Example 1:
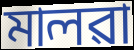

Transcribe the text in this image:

মালৱা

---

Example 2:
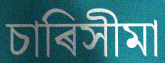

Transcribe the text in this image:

চাৰিসীমা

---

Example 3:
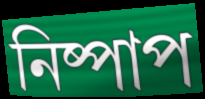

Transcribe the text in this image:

নিষ্পাপ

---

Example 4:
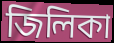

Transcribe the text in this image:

জিলিকা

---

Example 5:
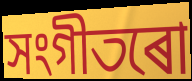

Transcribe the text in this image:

সংগীতৰো